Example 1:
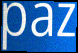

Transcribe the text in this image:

paz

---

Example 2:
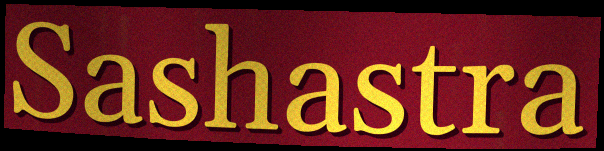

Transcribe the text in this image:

Sashastra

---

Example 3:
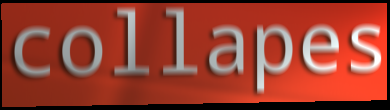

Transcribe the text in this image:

collapes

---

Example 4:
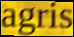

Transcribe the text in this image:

agris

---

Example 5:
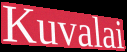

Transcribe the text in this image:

Kuvalai